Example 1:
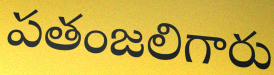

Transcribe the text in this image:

పతంజలిగారు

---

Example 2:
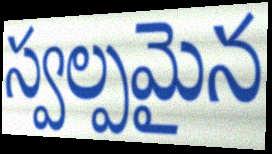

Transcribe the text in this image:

స్వల్పమైన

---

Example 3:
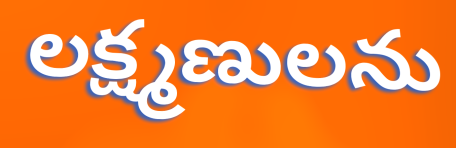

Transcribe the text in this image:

లక్ష్మణులను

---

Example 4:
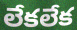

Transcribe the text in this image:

లేకలేక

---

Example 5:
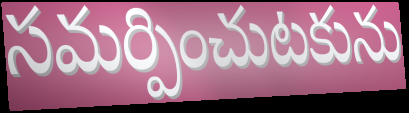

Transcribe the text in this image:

సమర్పించుటకును